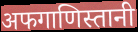
अफगाणिस्तानी